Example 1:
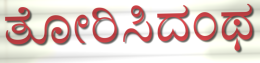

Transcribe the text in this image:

ತೋರಿಸಿದಂಥ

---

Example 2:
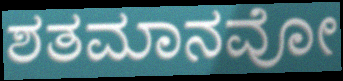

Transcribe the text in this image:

ಶತಮಾನವೋ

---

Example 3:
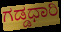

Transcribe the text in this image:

ಗಡ್ಡಧಾರಿ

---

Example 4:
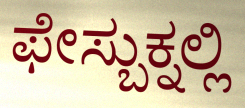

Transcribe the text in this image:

ಫೇಸ್ಬುಕ್ನಲ್ಲಿ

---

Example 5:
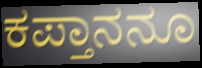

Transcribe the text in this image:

ಕಪ್ತಾನನೂ